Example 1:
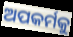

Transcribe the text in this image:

ଅପକର୍ମକୁ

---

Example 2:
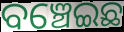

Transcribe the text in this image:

ବଞ୍ଚେଇଛ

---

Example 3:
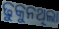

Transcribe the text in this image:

ଢୁକୁନଥିଲା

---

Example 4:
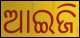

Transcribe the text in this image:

ଆଇଜି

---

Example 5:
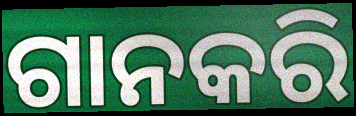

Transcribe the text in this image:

ଗାନକରି